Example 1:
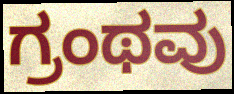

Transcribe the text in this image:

ಗ್ರಂಥವು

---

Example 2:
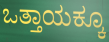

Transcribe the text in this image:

ಒತ್ತಾಯಕ್ಕೂ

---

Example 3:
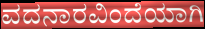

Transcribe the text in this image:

ವದನಾರವಿಂದೆಯಾಗಿ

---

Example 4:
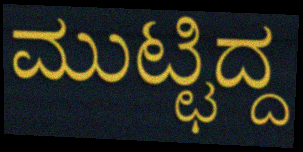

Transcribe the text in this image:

ಮುಟ್ಟಿದ್ದ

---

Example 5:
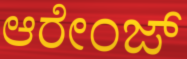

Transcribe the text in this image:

ಆರೇಂಜ್